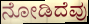
ನೋಡಿದೆವು